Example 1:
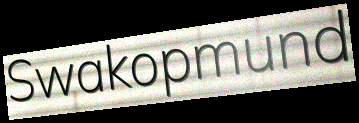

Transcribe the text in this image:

Swakopmund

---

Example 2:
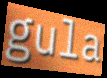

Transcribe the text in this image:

gula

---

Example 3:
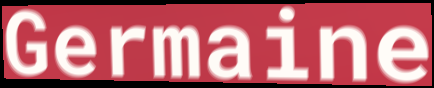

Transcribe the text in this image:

Germaine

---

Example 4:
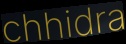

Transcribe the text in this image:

chhidra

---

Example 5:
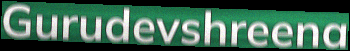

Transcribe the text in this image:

Gurudevshreena